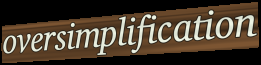
oversimplification